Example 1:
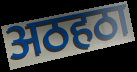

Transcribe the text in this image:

अठहठा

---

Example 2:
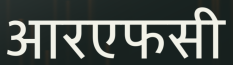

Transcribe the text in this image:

आरएफसी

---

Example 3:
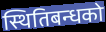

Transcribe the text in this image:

स्थितिबन्धको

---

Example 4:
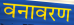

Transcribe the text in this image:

वनावरण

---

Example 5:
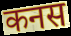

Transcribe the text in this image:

कनस